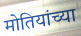
मोतियांच्या